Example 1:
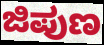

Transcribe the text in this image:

ಜಿಪುಣ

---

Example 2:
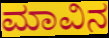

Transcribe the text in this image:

ಮಾವಿನ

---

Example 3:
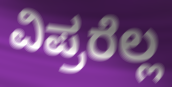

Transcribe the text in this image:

ವಿಪ್ರರೆಲ್ಲ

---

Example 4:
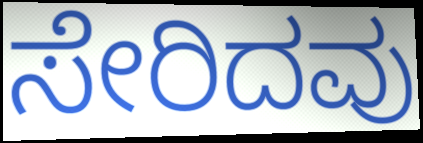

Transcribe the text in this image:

ಸೇರಿದವು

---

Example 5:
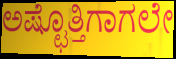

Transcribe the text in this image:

ಅಷ್ಟೊತ್ತಿಗಾಗಲೇ